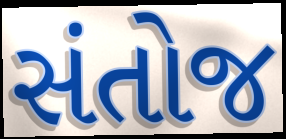
સંતોજ